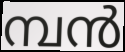
മ്പൻ